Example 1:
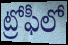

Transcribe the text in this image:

ట్రోఫీలో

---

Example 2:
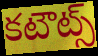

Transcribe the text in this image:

కటౌట్స్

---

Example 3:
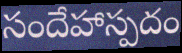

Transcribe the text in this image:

సందేహాస్పదం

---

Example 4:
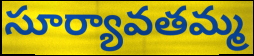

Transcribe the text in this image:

సూర్యావతమ్మ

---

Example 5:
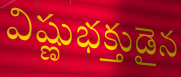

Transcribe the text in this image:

విష్ణుభక్తుడైన